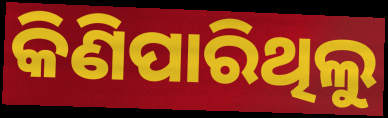
କିଣିପାରିଥିଲୁ